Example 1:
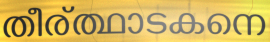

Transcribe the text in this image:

തീര്ത്ഥാടകനെ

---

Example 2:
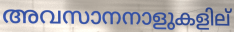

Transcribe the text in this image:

അവസാനനാളുകളില്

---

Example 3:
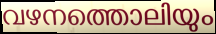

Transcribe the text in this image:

വഴനത്തൊലിയും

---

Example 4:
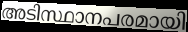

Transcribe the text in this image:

അടിസ്ഥാനപരമായി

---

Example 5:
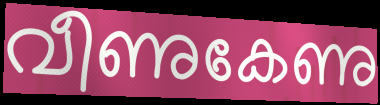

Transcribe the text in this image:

വീണുകേണു